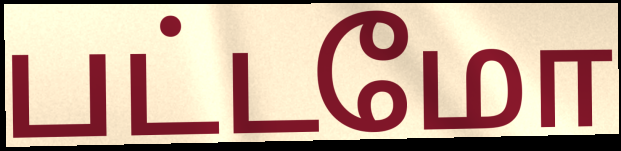
பட்டமோ